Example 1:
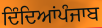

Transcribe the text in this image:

ਦਿੰਦਿਆਂਪੰਜਾਬ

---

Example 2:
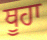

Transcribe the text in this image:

ਥੂਹਾ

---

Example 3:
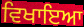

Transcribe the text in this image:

ਵਿਖਾਇਆ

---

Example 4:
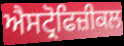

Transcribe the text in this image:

ਐਸਟ੍ਰੋਫਿਜ਼ੀਕਲ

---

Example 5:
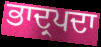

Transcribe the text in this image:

ਭਾਦ੍ਰਪਦਾ